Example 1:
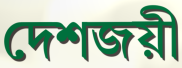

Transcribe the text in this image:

দেশজয়ী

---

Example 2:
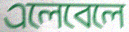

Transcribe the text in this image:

এলেবেলে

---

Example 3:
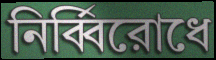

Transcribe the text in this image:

নির্ব্বিরোধে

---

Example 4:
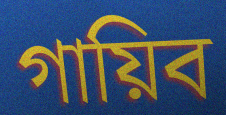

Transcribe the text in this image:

গায়িব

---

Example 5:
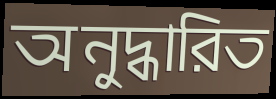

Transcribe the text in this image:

অনুদ্ধারিত